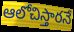
ఆలోచిస్తారనే